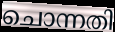
ചൊന്നതി